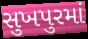
સુખપુરમાં